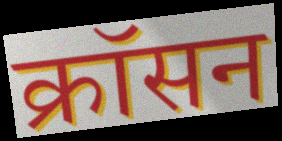
क्रॉसन